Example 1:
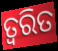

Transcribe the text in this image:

ତ୍ବରିତ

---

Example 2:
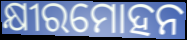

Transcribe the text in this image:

କ୍ଷୀରମୋହନ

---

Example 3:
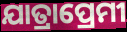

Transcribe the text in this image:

ଯାତ୍ରାପ୍ରେମୀ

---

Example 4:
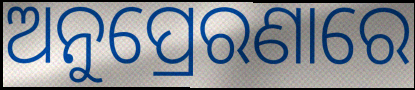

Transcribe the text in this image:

ଅନୁପ୍ରେରଣାରେ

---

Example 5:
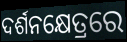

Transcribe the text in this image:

ଦର୍ଶନକ୍ଷେତ୍ରରେ